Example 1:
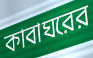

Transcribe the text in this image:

কাবাঘরের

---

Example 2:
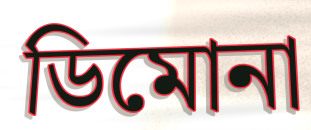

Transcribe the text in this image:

ডিমোনা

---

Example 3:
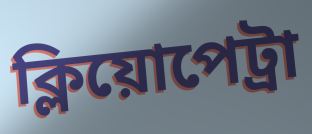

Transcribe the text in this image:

ক্লিয়োপেট্রা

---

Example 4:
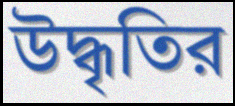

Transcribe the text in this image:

উদ্ধৃতির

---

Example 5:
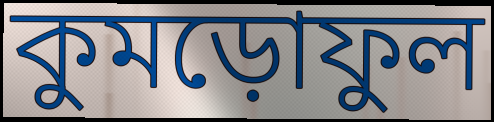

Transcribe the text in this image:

কুমড়োফুল